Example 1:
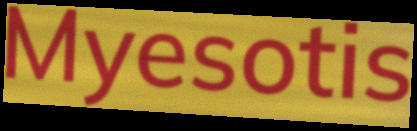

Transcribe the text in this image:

Myesotis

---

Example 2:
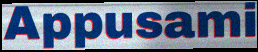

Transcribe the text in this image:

Appusami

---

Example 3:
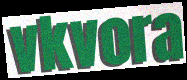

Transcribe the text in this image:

vkvora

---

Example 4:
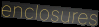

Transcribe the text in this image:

enclosures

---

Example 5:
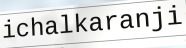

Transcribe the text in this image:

ichalkaranji